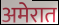
अमेरात